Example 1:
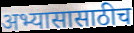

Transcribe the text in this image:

अभ्यासासाठीच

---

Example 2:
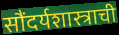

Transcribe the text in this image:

सौंदर्यशास्त्राची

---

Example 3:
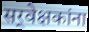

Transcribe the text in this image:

सर्वेक्षकांना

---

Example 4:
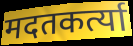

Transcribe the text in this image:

मदतकर्त्या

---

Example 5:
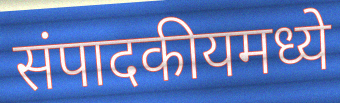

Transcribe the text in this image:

संपादकीयमध्ये